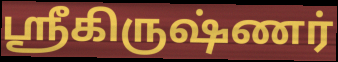
ஶ்ரீகிருஷ்ணர்